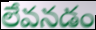
లేవనడం